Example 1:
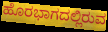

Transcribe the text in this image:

ಹೊರಭಾಗದಲ್ಲಿರುವ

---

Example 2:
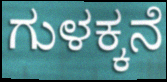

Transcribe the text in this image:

ಗುಳಕ್ಕನೆ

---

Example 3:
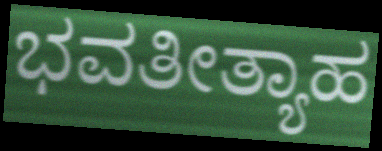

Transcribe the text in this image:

ಭವತೀತ್ಯಾಹ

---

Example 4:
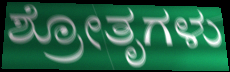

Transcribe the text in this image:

ಶ್ರೋತೃಗಳು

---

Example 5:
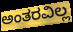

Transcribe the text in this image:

ಅಂತರವಿಲ್ಲ